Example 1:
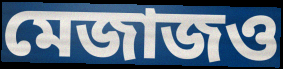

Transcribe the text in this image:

মেজাজও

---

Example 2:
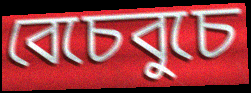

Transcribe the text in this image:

বেচেবুচে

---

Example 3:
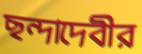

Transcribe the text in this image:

ছন্দাদেবীর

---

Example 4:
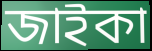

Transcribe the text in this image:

জাইকা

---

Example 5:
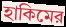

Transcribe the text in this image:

হাকিমের